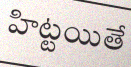
హిట్టయితే